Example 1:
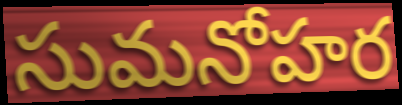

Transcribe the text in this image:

సుమనోహర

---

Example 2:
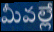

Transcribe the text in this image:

మీవల్లే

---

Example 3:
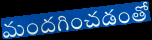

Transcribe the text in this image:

మందగించడంతో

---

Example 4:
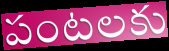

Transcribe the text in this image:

పంటలకు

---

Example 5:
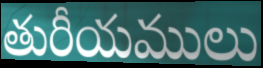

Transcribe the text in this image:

తురీయములు